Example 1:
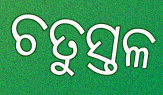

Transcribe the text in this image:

ଚତୁସ୍ତଳ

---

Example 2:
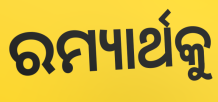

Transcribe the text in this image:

ରମ୍ୟାର୍ଥକୁ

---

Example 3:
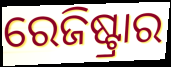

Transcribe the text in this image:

ରେଜିଷ୍ଟ୍ରାର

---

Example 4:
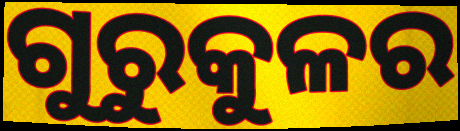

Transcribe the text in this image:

ଗୁରୁକୁଳର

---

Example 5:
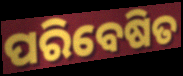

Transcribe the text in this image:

ପରିବେଷିତ